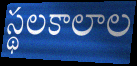
స్థలకాలాల